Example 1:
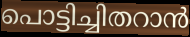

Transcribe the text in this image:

പൊട്ടിച്ചിതറാൻ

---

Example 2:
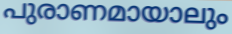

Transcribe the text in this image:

പുരാണമായാലും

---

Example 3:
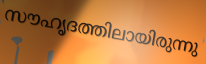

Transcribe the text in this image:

സൗഹൃദത്തിലായിരുന്നു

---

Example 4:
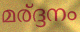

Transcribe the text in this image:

മര്ദ്ദനം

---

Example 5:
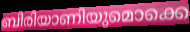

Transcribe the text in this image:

ബിരിയാണിയുമൊക്കെ